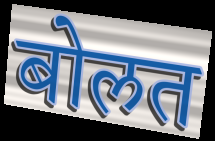
बोलत